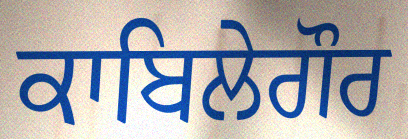
ਕਾਬਿਲੇਗੌਰ